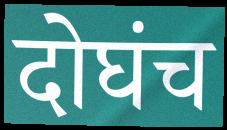
दोघंच